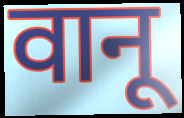
वानू